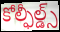
కోల్ఫీల్డ్స్